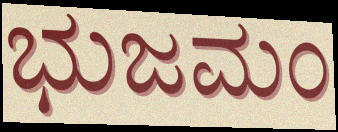
ಭುಜಮಂ